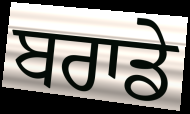
ਬਰਾਡੇ